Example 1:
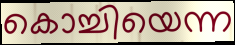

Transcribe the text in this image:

കൊച്ചിയെന്ന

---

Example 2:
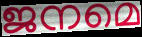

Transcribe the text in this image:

ജനമെ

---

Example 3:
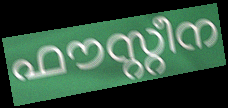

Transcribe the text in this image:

ഫൗസ്റ്റീന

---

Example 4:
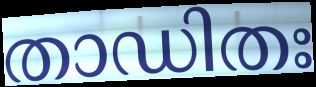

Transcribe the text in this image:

താഡിതഃ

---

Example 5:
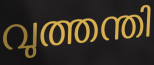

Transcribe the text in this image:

വുത്തന്തി